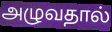
அழுவதால்